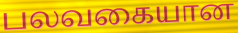
பலவகையான